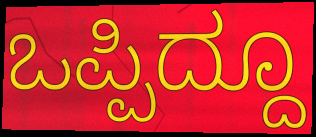
ಒಪ್ಪಿದ್ದೂ